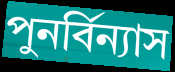
পুনর্বিন্যাস